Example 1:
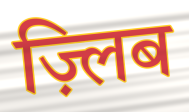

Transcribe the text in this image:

ज़्लिब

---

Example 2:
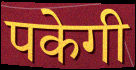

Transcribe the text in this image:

पकेगी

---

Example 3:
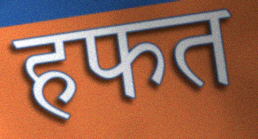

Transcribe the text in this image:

हफत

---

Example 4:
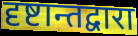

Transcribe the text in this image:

दृष्टान्तद्वारा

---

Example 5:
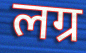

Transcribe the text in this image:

लग्र